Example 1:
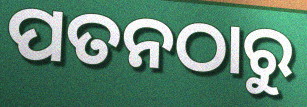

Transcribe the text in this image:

ପତନଠାରୁ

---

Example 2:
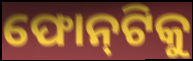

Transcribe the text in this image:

ଫୋନ୍‌ଟିକୁ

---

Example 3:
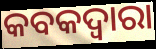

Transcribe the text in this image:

କବକଦ୍ୱାରା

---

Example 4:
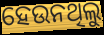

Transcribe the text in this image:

ହେଉନଥିଲୁ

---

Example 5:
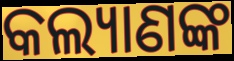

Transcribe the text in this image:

କଲ୍ୟାଣଙ୍କ